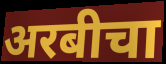
अरबीचा